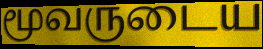
மூவருடைய